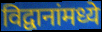
विद्वानांमध्ये